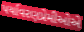
પર્યાવરણપ્રેમીઓએ